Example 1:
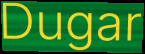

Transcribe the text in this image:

Dugar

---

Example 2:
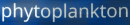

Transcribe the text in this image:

phytoplankton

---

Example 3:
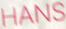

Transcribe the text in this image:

HANS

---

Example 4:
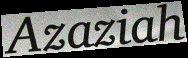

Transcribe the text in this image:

Azaziah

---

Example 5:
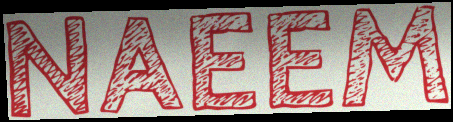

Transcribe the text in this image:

NAEEM